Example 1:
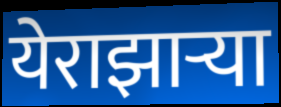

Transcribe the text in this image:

येराझाऱ्या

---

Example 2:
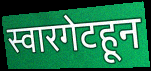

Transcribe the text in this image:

स्वारगेटहून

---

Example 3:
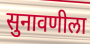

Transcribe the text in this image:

सुनावणीला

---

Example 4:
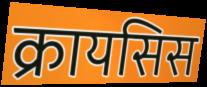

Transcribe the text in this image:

क्रायसिस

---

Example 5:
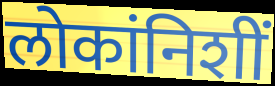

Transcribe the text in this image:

लोकांनिशीं